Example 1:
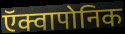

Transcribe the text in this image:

ऍक्वापोनिक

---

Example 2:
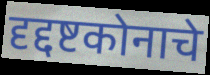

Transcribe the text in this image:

दृद्दष्टकोनाचे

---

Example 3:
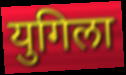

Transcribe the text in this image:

युगिला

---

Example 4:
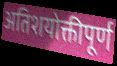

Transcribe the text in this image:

अतिशयोक्तीपूर्ण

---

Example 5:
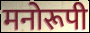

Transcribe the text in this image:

मनोरूपी